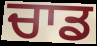
ਚਾਡ